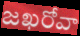
జఖరోవా